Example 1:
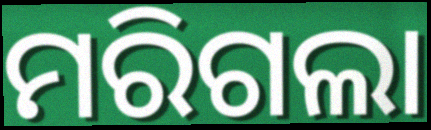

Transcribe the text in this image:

ମରିଗଲା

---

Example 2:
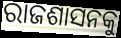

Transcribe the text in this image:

ରାଜଶାସନକୁ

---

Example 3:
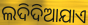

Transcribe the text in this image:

ଲଦିଦିଆଯାଏ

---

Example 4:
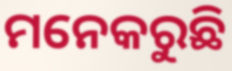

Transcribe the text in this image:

ମନେକରୁଛି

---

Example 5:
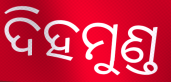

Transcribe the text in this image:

ଦିହମୁଣ୍ଡ